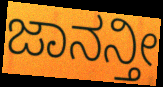
ಜಾನನ್ತೀ